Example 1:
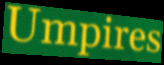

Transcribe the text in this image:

Umpires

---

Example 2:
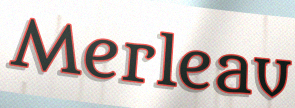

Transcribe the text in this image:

Merleau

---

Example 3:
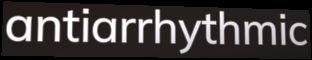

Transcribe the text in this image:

antiarrhythmic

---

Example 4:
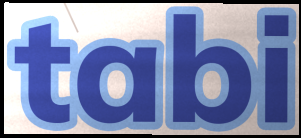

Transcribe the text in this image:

tabi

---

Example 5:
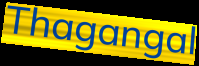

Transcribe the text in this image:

Thagangal